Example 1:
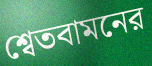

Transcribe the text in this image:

শ্বেতবামনের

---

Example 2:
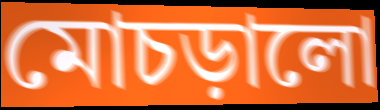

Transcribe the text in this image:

মোচড়ালো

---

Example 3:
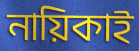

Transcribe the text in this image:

নায়িকাই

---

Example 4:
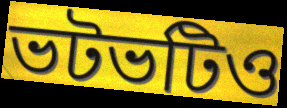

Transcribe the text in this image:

ভটভটিও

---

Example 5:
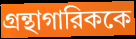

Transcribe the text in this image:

গ্রন্থাগারিককে